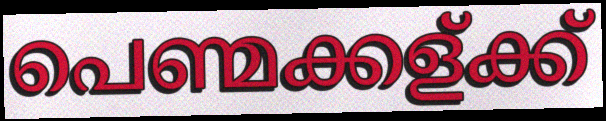
പെണ്മക്കള്ക്ക്